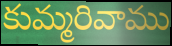
కుమ్మరివాము